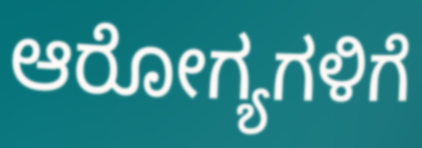
ಆರೋಗ್ಯಗಳಿಗೆ